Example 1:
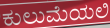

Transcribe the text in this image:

ಕುಲುಮೆಯಲಿ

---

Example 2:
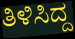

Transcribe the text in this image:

ತಿಳಿಸಿದ್ದ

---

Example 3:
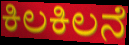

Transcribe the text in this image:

ಕಿಲಕಿಲನೆ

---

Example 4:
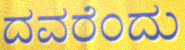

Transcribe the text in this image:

ದವರೆಂದು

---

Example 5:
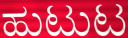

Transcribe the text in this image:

ಹುಟುಟ